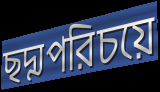
ছদ্মপরিচয়ে